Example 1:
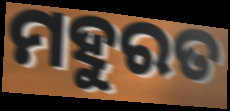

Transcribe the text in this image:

ମହୁରତ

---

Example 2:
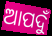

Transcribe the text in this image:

ଆପଦୁଁ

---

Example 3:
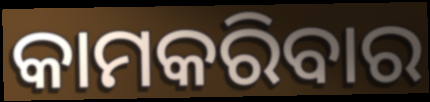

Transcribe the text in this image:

କାମକରିବାର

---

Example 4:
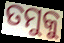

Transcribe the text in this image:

ତମୁକୁ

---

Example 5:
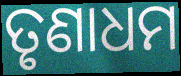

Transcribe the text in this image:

ତୃଣାଧମ